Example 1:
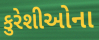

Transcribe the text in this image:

કુરેશીઓના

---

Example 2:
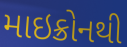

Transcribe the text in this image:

માઇક્રોનથી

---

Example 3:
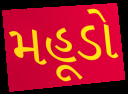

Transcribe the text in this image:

મહૂડો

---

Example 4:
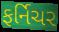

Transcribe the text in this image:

ફર્નિચર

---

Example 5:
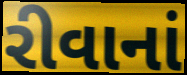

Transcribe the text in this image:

રીવાનાં